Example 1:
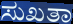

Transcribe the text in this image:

ಸುಖತಾ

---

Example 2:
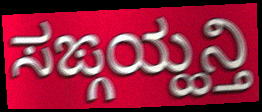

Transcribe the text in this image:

ಸಙ್ಗಯ್ಹನ್ತಿ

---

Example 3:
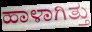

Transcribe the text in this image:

ಹಾಳಾಗಿತ್ತು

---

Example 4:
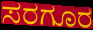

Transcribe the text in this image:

ಸರಗೂರ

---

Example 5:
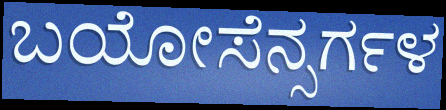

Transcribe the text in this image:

ಬಯೋಸೆನ್ಸರ್ಗಳ